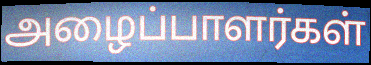
அழைப்பாளர்கள்